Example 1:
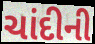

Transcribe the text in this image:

ચાંદીની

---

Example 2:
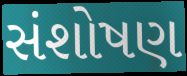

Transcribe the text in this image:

સંશોષણ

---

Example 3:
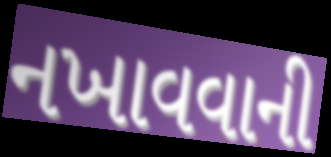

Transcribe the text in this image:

નખાવવાની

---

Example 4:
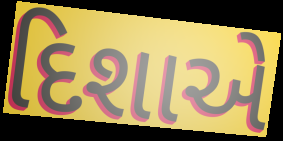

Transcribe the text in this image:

દિશાએ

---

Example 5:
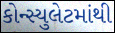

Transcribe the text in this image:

કોન્સ્યુલેટમાંથી